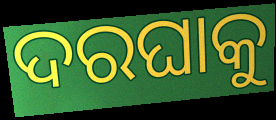
ଦରଘାକୁ